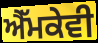
ਐੱਮਕੇਵੀ